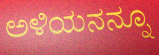
ಅಳಿಯನನ್ನೂ